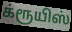
க்ரூயிஸ்